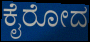
ಕೈರೋದ